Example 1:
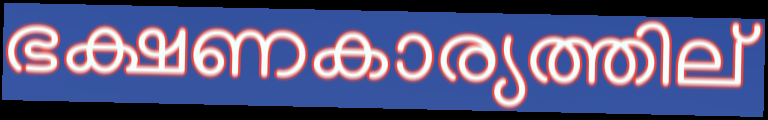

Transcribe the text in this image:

ഭക്ഷണകാര്യത്തില്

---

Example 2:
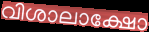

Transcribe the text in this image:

വിശാലാക്ഷോ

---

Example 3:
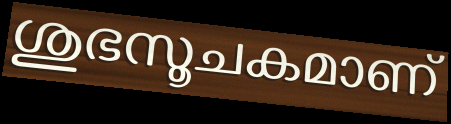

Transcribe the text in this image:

ശുഭസൂചകമാണ്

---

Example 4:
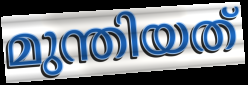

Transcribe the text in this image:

മുന്തിയത്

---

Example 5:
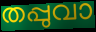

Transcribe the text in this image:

തപ്പുവാ